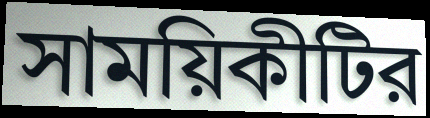
সাময়িকীটির